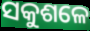
ସକୁଶଳେ